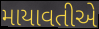
માયાવતીએ